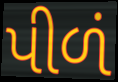
પીળં